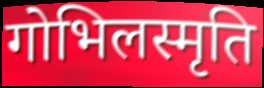
गोभिलस्मृति